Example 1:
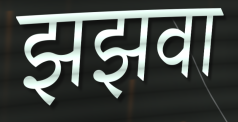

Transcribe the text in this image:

झझवा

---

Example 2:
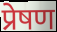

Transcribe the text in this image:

प्रेषण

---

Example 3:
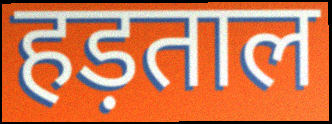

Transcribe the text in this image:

हड़ताल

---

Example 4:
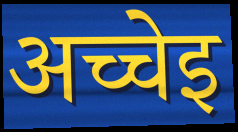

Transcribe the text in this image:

अच्चेइ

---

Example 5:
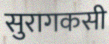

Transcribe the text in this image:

सुरागकसी